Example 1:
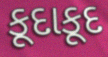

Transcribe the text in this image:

કૂદાકૂદ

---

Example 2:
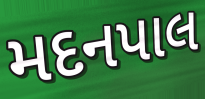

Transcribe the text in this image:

મદનપાલ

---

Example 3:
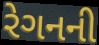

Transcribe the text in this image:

રેગનની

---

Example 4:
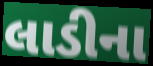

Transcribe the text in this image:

લાડીના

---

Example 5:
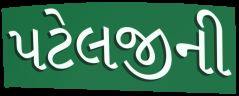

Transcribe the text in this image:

પટેલજીની